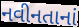
નવીનતાનાં